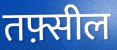
तफ़्सील